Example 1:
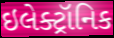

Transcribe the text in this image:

ઇલેક્ટ્રૉનિક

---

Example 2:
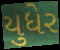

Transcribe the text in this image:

યુધેર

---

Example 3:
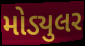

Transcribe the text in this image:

મોડ્યુલર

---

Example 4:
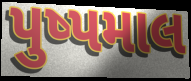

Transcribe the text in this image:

પુષ્પમાલ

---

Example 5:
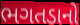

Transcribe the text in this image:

ભગતડાનો